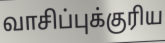
வாசிப்புக்குரிய